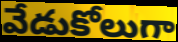
వేడుకోలుగా